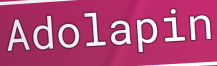
Adolapin